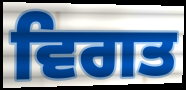
ਵਿਗਤ